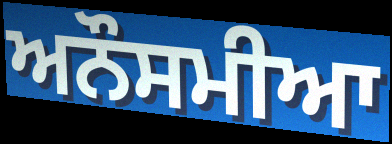
ਅਨੌਸਮੀਆ